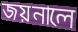
জয়নালে